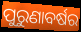
ପୁରୁଣାବର୍ଷର